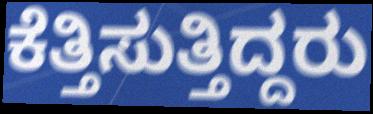
ಕೆತ್ತಿಸುತ್ತಿದ್ದರು